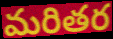
మరితర